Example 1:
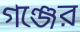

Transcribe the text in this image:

গঞ্জের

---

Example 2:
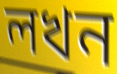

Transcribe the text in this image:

লখন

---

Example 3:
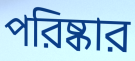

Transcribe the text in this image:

পরিষ্কার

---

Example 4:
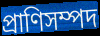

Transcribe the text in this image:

প্রাণিসম্পদ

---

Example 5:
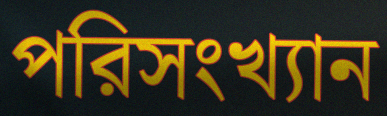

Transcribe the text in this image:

পরিসংখ্যান